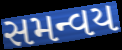
સમન્વય